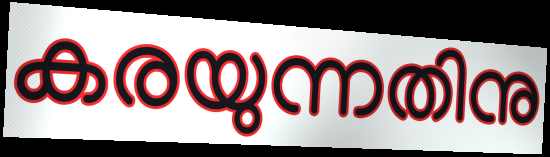
കരയുന്നതിനു